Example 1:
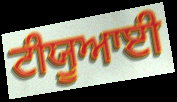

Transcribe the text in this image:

ਟੀਯੂਆਈ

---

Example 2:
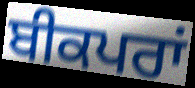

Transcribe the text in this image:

ਬੀਕਪਰਾਂ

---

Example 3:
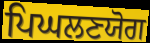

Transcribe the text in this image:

ਪਿਘਲਣਯੋਗ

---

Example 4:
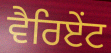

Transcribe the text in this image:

ਵੈਰਿਏਂਟ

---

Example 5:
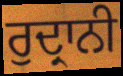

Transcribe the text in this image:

ਰੁਦ੍ਰਾਨੀ